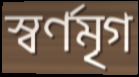
স্বর্ণমৃগ